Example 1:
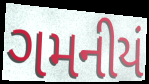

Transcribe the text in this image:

ગમનીયં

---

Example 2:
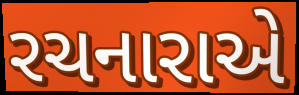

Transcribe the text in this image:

રચનારાએ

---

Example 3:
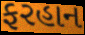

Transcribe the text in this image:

ફરહાન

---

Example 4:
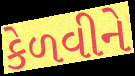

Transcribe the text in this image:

કેળવીને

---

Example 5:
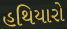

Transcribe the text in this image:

હથિયારો